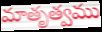
మాతృత్వము